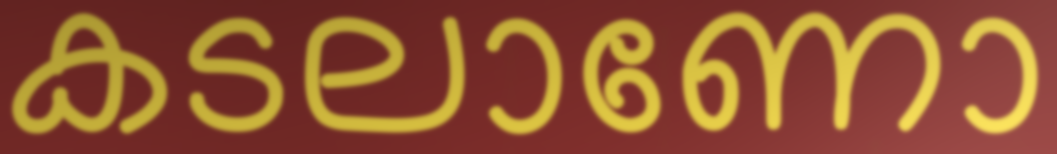
കടലാണോ